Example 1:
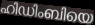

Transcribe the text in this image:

ഹിഡിംബിയെ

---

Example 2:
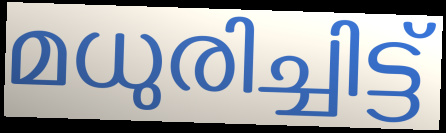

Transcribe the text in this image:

മധുരിച്ചിട്ട്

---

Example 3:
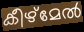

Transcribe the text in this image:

കീഴ്മേൽ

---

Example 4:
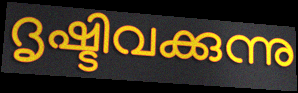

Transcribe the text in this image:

ദൃഷ്ടിവക്കുന്നു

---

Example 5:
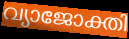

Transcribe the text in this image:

വ്യാജോക്തി